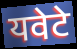
यवेटे